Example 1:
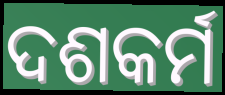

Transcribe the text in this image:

ଦଶକର୍ମ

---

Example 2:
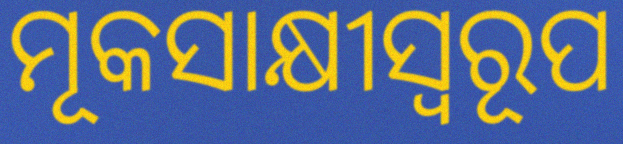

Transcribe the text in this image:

ମୂକସାକ୍ଷୀସ୍ୱରୂପ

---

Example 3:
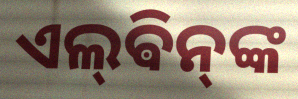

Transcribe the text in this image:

ଏଲ୍‌ଵିନ୍‌ଙ୍କ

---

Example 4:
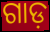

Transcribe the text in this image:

ଗାଡ଼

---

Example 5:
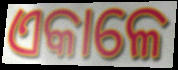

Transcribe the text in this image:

ଏକାଳେ